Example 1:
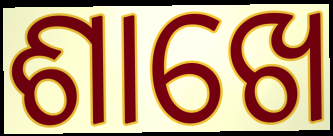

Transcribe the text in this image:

ଶାଖେ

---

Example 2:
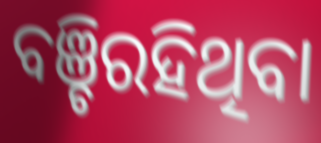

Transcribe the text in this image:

ବଞ୍ଚିରହିଥିବା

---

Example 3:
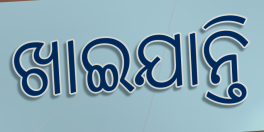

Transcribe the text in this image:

ଖାଇଯାନ୍ତି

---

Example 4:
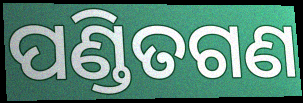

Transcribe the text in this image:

ପଣ୍ଡିତଗଣ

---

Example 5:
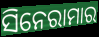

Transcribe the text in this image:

ସିନେରାମାର